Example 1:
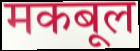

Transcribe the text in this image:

मकबूल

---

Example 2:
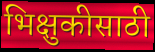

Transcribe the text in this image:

भिक्षुकीसाठी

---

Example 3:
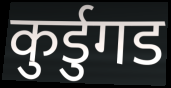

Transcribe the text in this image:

कुर्डुगड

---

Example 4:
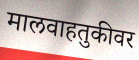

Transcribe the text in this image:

मालवाहतुकीवर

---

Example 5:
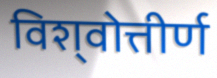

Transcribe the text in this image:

विश्वोत्तीर्ण